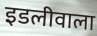
इडलीवाला